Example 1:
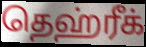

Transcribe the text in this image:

தெஹ்ரீக்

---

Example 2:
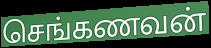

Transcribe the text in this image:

செங்கணவன்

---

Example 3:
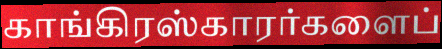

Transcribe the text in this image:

காங்கிரஸ்காரர்களைப்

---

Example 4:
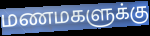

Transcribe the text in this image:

மணமகளுக்கு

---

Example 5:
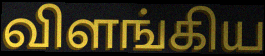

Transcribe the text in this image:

விளங்கிய